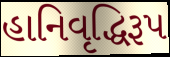
હાનિવૃદ્ધિરૂપ